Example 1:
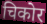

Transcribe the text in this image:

चिकोर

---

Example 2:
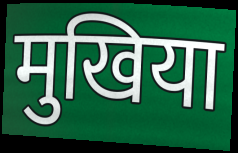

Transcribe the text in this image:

मुखिया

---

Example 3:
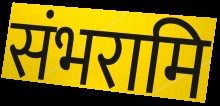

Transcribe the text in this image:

संभरामि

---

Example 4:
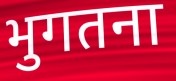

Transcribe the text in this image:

भुगतना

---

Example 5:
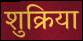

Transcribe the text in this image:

शुक्रिया